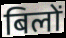
बिलों